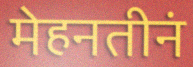
मेहनतीनं